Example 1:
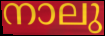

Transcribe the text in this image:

നാലു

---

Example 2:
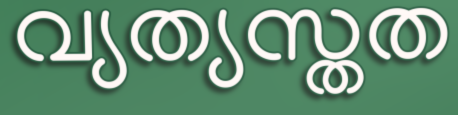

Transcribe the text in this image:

വ്യത്യസ്തത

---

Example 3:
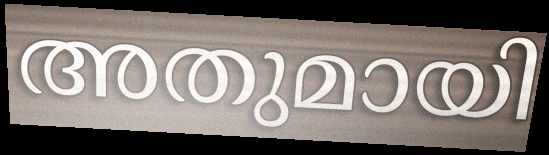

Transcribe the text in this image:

അതുമായി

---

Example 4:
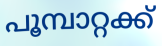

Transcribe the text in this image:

പൂമ്പാറ്റക്ക്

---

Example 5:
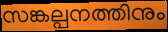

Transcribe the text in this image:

സങ്കല്പനത്തിനും